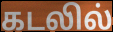
கடலில்